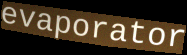
evaporator